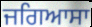
ਜਗਿਆਸਾ